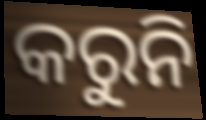
କରୁନି